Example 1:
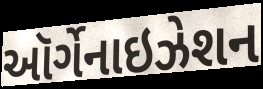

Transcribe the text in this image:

ઑર્ગેનાઇઝેશન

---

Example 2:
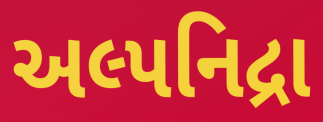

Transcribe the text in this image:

અલ્પનિદ્રા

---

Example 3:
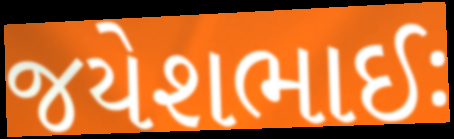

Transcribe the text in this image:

જયેશભાઈઃ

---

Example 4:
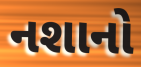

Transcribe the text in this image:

નશાનો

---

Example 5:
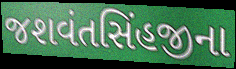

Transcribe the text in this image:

જશવંતસિંહજીના